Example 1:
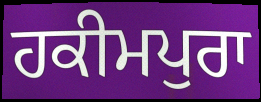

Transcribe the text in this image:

ਹਕੀਮਪੁਰਾ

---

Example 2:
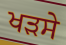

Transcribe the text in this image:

ਖੜਸੇ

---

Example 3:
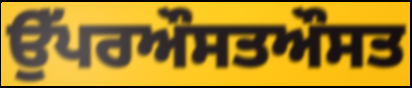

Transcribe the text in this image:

ਉੱਪਰਔਸਤਔਸਤ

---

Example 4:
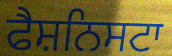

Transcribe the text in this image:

ਫੈਸ਼ਨਿਸਟਾ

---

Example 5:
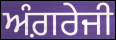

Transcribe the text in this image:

ਅੰਗ਼ਰੇਜੀ